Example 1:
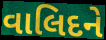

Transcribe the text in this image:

વાલિદને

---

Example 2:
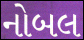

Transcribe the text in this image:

નોબલ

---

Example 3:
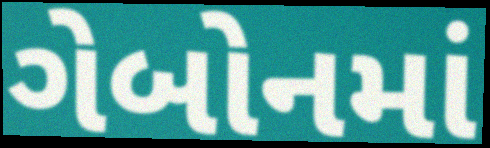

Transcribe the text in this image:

ગેબોનમાં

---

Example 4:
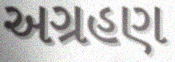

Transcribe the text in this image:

અગ્રહણ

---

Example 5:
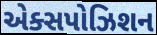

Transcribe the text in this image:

એક્સપોઝિશન